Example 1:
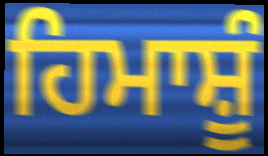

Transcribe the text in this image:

ਹਿਮਾਸ਼ੂੰ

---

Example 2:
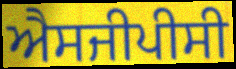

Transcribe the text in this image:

ਐਸਜੀਪੀਸੀ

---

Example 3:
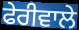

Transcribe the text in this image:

ਫੇਰੀਵਾਲੇ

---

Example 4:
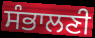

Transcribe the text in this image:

ਸੰਭਾਲਣੀ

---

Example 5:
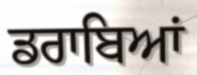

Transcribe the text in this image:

ਡਰਾਬਿਆਂ